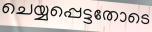
ചെയ്യപ്പെട്ടതോടെ